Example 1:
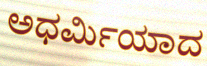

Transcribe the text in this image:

ಅಧರ್ಮಿಯಾದ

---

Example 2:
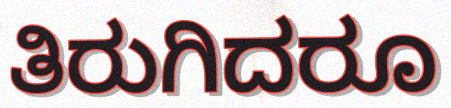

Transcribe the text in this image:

ತಿರುಗಿದರೂ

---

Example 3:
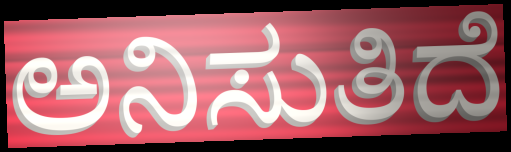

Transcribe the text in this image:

ಅನಿಸುತಿದೆ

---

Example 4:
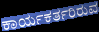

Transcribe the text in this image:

ಕಾರ್ಯಕರ್ತರಿರುವ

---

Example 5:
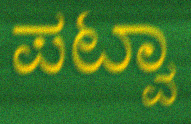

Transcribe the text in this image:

ಪಟ್ವಾ